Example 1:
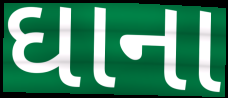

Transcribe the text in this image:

ઘાના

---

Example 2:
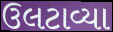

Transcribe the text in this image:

ઉલટાવ્યા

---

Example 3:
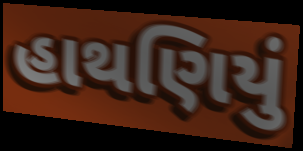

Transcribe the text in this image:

હાથણિયું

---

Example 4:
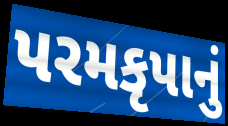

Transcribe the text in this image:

પરમકૃપાનું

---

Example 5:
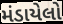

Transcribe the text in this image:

મંડાયેલો